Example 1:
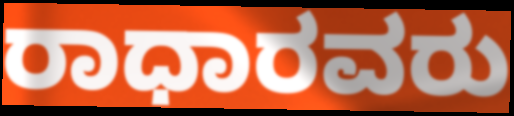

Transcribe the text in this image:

ರಾಧಾರವರು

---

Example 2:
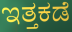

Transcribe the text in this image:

ಇತ್ತಕಡೆ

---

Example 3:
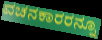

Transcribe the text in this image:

ವಚನಕಾರರನ್ನೂ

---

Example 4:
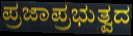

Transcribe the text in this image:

ಪ್ರಜಾಪ್ರಭುತ್ವದ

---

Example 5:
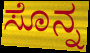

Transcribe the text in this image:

ಸೊನ್ನ